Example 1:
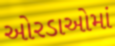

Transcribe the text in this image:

ઓરડાઓમાં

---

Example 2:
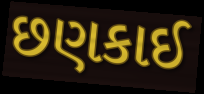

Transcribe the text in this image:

છણકાઈ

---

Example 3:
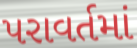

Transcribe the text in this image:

પરાવર્તમાં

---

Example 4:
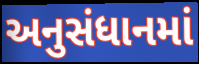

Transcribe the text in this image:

અનુસંધાનમાં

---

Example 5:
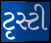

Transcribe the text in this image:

ટૃસ્ટી